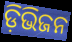
ଡ଼ିଭିଜନ